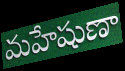
మహేషుణా